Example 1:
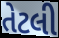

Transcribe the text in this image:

તેટલી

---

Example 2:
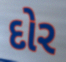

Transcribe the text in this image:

દોર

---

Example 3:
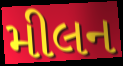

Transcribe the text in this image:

મીલન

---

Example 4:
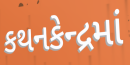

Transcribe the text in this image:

કથનકેન્દ્રમાં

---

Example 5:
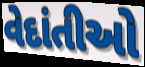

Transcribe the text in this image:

વેદાંતીઓ